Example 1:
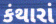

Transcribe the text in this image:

કંથારાં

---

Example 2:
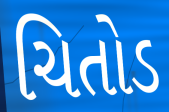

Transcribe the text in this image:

ચિતોડ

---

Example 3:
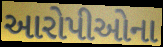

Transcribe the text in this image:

આરોપીઓના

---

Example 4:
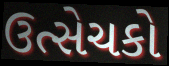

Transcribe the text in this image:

ઉત્સેચકો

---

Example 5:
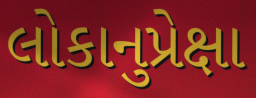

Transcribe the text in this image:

લોકાનુપ્રેક્ષા